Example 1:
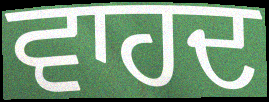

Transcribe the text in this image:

ਵਾਹਦ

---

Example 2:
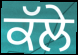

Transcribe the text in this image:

ਕੱਲੇ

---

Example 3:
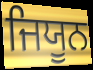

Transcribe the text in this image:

ਜਿਯੂਨ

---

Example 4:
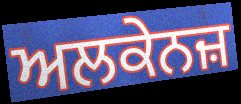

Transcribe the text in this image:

ਅਲਕੇਨਜ਼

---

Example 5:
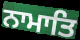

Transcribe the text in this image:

ਨਾਮਾਤਿ